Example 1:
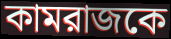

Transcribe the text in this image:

কামরাজকে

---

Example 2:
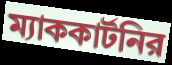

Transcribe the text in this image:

ম্যাককার্টনির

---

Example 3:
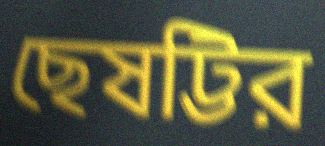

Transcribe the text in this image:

ছেষট্টির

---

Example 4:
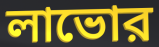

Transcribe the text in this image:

লাভোর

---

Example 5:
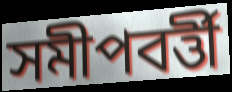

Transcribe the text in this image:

সমীপবর্ত্তী